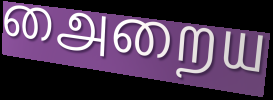
அைறைய